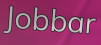
Jobbar